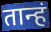
तान्हं